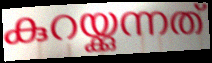
കുറയ്ക്കുന്നത്